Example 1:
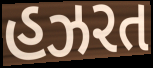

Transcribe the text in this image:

હઝરત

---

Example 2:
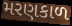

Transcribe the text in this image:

મરણકાળ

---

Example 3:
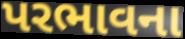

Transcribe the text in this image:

પરભાવના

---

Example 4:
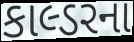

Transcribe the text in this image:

કાલ્ડરના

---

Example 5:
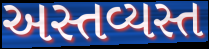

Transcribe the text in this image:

અસ્તવ્યસ્ત